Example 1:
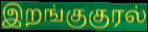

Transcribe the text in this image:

இறங்குகுரல்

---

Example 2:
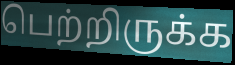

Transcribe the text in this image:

பெற்றிருக்க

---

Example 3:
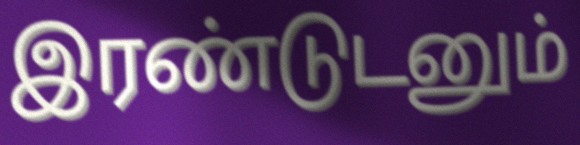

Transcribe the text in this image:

இரண்டுடனும்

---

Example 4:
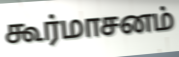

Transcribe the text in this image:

கூர்மாசனம்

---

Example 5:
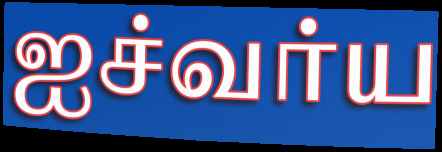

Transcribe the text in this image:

ஐச்வர்ய